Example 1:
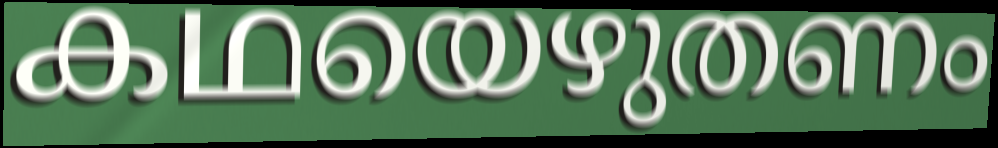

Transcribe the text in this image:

കഥയെഴുതണം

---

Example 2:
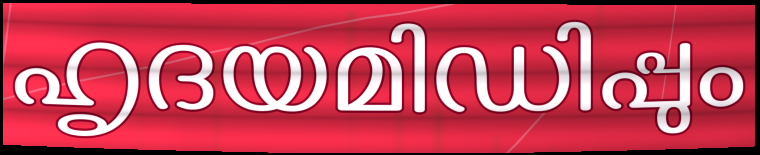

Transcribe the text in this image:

ഹൃദയമിഡിപ്പും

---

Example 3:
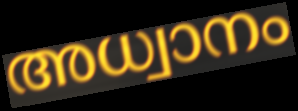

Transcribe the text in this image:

അധ്വാനം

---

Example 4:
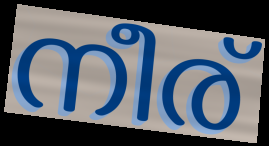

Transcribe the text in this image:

നീര്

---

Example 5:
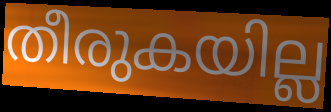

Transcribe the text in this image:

തീരുകയില്ല